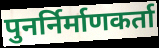
पुनर्निर्माणकर्ता